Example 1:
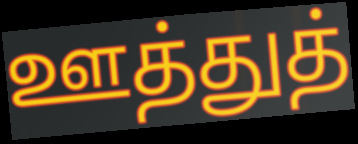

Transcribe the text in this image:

ஊத்துத்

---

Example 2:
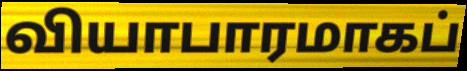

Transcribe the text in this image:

வியாபாரமாகப்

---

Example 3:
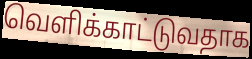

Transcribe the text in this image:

வெளிக்காட்டுவதாக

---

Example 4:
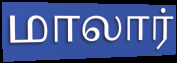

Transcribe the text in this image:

மாலார்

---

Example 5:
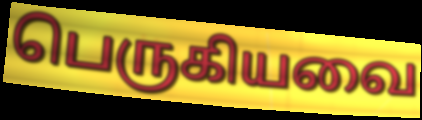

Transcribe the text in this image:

பெருகியவை